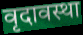
वृदावस्था